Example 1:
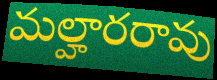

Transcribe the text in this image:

మల్హారరావు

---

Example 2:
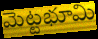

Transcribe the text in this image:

మెట్టభూమి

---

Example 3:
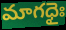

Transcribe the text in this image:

మాగధైః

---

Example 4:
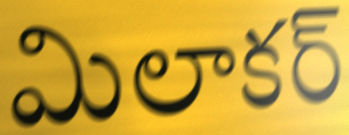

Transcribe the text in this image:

మిలాకర్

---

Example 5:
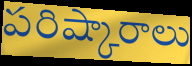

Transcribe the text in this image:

పరిష్కారాలు